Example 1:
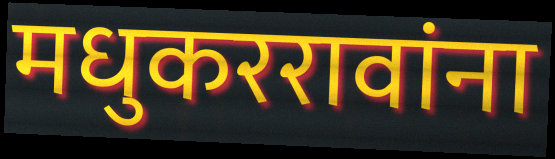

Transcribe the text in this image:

मधुकररावांना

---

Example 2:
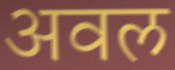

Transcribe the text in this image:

अवल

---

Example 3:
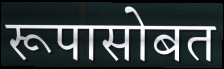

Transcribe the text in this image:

रूपासोबत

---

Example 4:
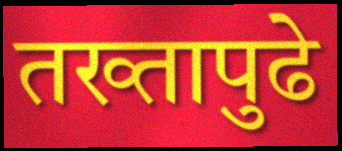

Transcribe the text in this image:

तख्तापुढे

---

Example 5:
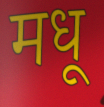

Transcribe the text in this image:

मधू